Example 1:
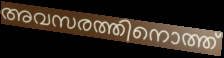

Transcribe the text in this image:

അവസരത്തിനൊത്ത്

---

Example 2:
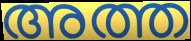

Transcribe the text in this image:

അത്ത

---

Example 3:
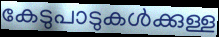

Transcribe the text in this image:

കേടുപാടുകൾക്കുള്ള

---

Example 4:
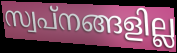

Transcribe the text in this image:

സ്വപ്നങ്ങളില്ല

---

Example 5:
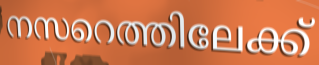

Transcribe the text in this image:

നസറെത്തിലേക്ക്